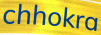
chhokra